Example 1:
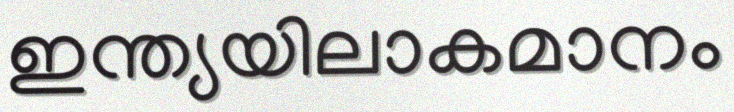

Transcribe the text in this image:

ഇന്ത്യയിലാകമാനം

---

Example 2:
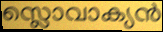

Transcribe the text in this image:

സ്ലൊവാക്യൻ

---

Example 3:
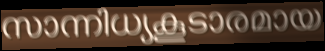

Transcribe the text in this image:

സാന്നിധ്യകൂടാരമായ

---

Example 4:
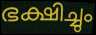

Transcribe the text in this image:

ഭക്ഷിച്ചും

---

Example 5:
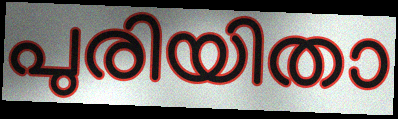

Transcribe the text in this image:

പുരിയിതാ